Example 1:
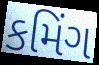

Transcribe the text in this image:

કમિંગ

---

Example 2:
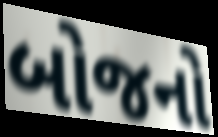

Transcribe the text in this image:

બોજનો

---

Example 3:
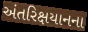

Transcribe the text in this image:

અંતરિક્ષયાનના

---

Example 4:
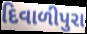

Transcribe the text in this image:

દિવાળીપુરા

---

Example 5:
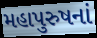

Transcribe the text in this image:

મહાપુરુષનાં